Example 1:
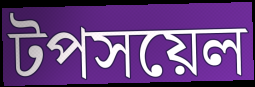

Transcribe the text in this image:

টপসয়েল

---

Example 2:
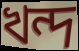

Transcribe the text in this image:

খন্দ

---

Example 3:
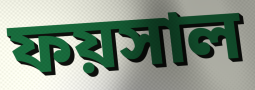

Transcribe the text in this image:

ফয়সাল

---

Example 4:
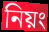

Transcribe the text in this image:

নিয়ং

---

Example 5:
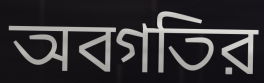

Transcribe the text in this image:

অবগতির